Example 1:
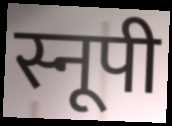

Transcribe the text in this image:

स्नूपी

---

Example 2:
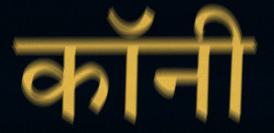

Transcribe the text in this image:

कॉनी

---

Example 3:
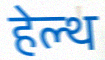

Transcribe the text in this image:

हेल्थ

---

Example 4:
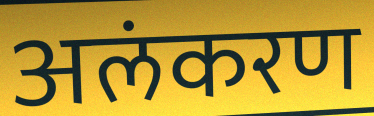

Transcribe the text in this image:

अलंकरण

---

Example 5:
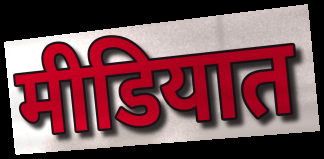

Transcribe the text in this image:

मीडियात